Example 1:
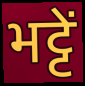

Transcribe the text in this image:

भट्टें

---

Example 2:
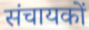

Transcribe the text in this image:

संचायकों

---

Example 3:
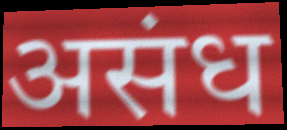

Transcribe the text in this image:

असंध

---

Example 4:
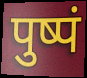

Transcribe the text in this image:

पुष्पं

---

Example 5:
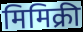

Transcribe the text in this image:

मिमिक्री